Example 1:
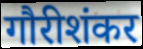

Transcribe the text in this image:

गौरीशंकर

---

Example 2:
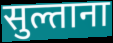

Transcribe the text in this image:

सुल्ताना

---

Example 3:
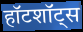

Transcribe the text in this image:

हॉटशॉट्स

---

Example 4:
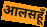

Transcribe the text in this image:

आलसहूँ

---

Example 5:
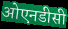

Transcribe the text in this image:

ओएनडीसी